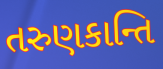
તરુણકાન્તિ